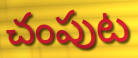
చంపుట